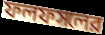
ফলফসলের